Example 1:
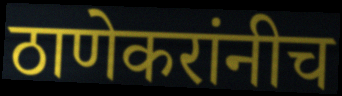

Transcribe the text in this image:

ठाणेकरांनीच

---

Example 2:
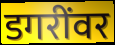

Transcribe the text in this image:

डगरींवर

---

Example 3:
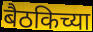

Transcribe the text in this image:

बैठकिच्या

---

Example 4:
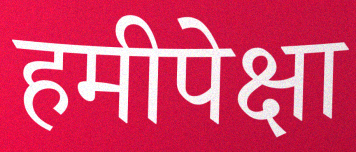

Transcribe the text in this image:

हमीपेक्षा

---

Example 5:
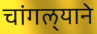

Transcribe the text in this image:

चांगल्याने